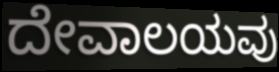
ದೇವಾಲಯವು